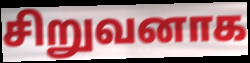
சிறுவனாக